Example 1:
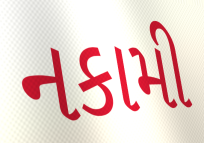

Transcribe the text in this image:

નકામી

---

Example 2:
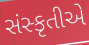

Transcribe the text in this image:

સંસ્કૃતીએ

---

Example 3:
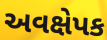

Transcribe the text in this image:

અવક્ષેપક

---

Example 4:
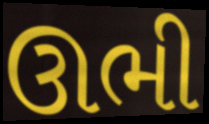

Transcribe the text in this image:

ઊભી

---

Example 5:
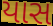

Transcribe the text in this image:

યાસ